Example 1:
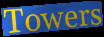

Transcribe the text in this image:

Towers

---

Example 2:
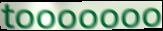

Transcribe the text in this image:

tooooooo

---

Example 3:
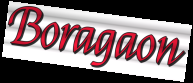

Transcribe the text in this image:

Boragaon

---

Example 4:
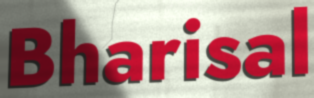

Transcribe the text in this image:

Bharisal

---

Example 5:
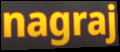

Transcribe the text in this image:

nagraj